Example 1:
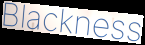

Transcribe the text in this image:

Blackness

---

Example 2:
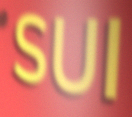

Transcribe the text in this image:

SUI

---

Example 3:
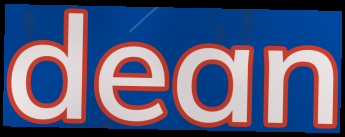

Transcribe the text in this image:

dean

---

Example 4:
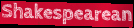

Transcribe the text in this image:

Shakespearean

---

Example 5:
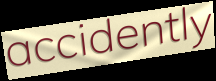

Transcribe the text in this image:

accidently